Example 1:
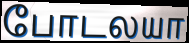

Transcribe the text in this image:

போடலயா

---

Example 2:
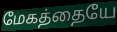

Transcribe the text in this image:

மேகத்தையே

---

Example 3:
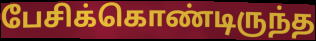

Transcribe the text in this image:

பேசிக்கொண்டிருந்த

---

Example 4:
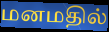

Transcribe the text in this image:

மனமதில்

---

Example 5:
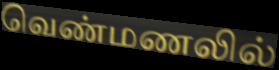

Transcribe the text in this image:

வெண்மணலில்